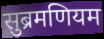
सुब्रमणियम